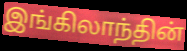
இங்கிலாந்தின்